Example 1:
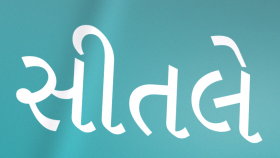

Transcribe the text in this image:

સીતલે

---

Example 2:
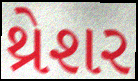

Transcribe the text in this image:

થ્રેશર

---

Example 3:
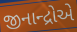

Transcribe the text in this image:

જીનાન્દ્રોએ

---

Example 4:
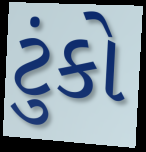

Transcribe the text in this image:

ટુંકો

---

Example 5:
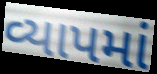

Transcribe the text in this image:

વ્યાપમાં